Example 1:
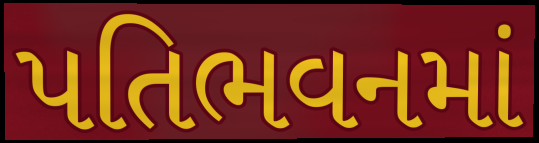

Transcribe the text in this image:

પતિભવનમાં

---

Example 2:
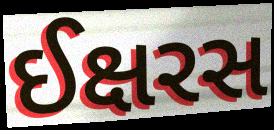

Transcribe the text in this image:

ઈક્ષરસ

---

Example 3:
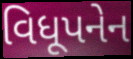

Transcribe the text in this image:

વિધૂપનેન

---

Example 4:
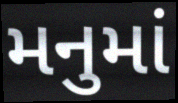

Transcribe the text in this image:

મનુમાં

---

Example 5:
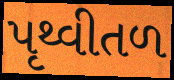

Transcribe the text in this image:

પૃથ્વીતળ